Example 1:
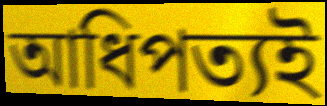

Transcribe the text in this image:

আধিপত্যই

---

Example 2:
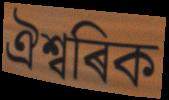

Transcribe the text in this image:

ঐশ্বৰিক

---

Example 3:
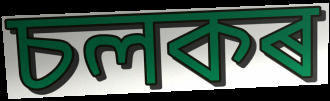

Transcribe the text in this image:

চলকৰ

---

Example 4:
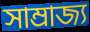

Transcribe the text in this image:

সাম্ৰাজ্য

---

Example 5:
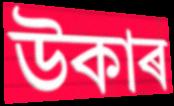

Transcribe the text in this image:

উকাৰ